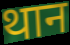
थान